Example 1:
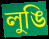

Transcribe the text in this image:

লুঙি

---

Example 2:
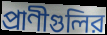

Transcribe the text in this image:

প্রাণীগুলির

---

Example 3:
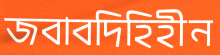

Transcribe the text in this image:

জবাবদিহিহীন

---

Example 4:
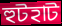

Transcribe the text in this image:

হুটহাট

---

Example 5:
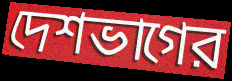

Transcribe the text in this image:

দেশভাগের